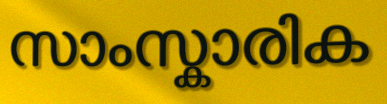
സാംസ്കാരിക